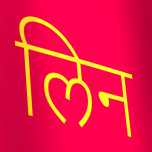
लिन